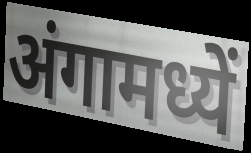
अंगामध्यें